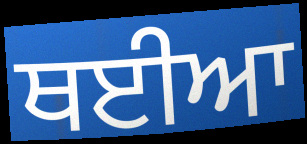
ਥਈਆ